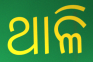
ଥାଳି